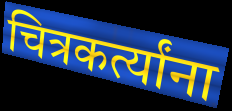
चित्रकर्त्यांना